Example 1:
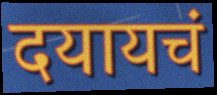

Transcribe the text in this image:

दयायचं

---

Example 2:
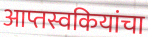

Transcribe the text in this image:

आप्तस्वकियांचा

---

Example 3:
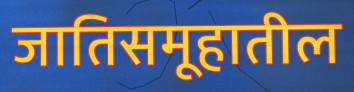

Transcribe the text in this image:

जातिसमूहातील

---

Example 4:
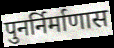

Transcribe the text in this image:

पुनर्निर्माणास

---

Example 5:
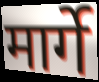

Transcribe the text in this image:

मार्गे